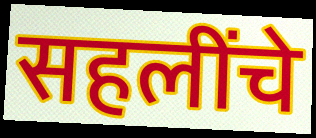
सहलींचे